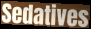
Sedatives